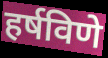
हर्षविणे